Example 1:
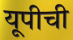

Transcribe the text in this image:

यूपीची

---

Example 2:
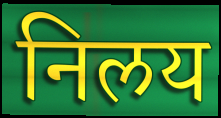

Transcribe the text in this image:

निलय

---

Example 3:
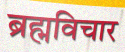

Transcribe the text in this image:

ब्रह्मविचार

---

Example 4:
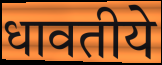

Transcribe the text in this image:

धावतीये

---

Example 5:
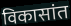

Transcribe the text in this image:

विकासांत